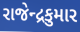
રાજેન્દ્રકુમાર